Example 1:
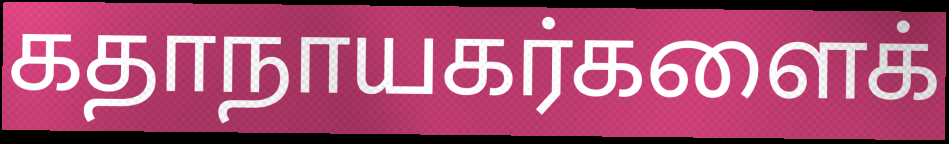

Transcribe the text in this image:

கதாநாயகர்களைக்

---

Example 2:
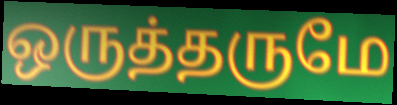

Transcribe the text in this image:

ஒருத்தருமே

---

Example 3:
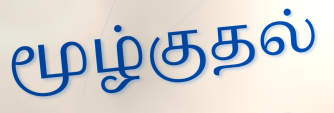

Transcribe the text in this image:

மூழ்குதல்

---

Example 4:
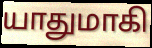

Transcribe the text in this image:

யாதுமாகி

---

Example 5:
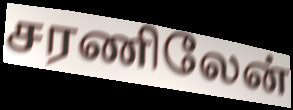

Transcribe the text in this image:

சரணிலேன்